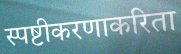
स्पष्टीकरणाकरिता